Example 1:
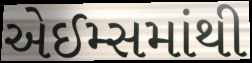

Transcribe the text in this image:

એઈમ્સમાંથી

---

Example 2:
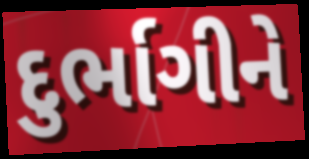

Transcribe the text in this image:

દુર્ભાગીને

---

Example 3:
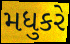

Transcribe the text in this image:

મધુકરે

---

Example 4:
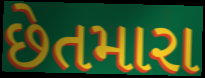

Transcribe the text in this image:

છેતમારા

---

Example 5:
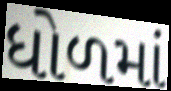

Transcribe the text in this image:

ધોળમાં